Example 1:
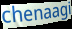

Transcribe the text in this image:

chenaagi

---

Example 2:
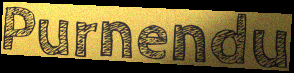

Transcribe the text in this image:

Purnendu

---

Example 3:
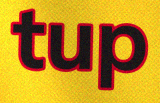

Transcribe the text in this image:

tup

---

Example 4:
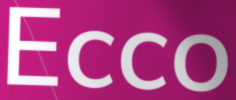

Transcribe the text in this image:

Ecco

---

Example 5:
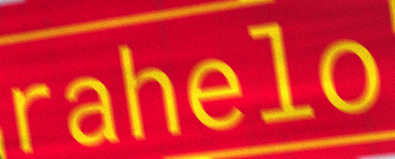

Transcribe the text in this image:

rahelo